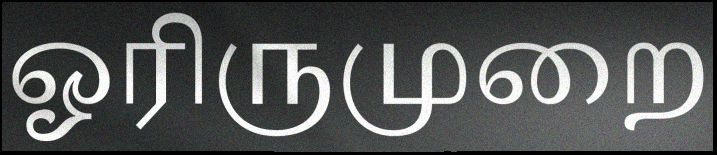
ஓரிருமுறை